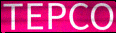
TEPCO